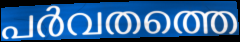
പർവതത്തെ